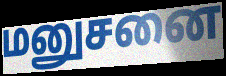
மனுசனை